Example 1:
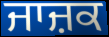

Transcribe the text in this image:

ਜਾਜ਼ਕ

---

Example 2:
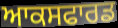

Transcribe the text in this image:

ਆਕਸਫਾਰਡ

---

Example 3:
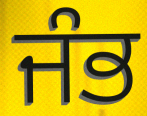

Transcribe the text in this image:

ਜੰਭ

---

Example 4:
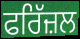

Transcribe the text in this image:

ਫਰਿੱਜ਼ਲ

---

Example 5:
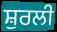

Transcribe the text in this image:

ਸ਼ੁਰਲੀ